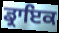
ਡ੍ਰਾਇਕ